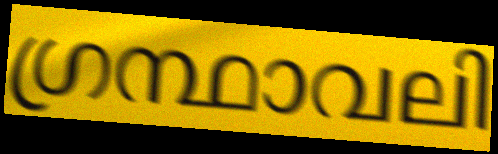
ഗ്രന്ഥാവലി